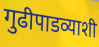
गुढीपाडव्याशी